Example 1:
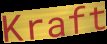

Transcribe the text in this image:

Kraft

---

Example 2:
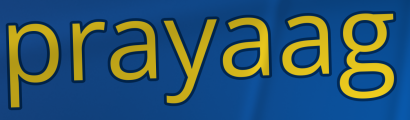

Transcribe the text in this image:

prayaag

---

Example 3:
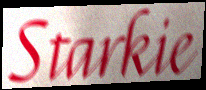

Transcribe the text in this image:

Starkie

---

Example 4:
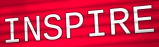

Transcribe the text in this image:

INSPIRE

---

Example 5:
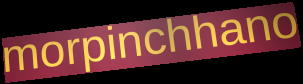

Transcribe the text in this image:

morpinchhano